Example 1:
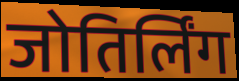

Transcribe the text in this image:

जोतिर्लिंग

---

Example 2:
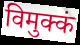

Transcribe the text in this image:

विमुक्कं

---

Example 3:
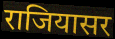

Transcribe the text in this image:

राजियासर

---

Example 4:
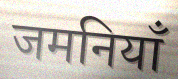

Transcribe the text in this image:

जमनियाँ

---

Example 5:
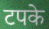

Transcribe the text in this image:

टपके